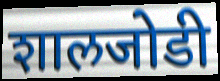
शालजोडी